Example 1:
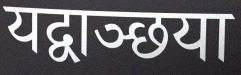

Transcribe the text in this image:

यद्वाञ्छया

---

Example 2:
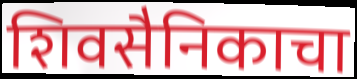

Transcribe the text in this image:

शिवसैनिकाचा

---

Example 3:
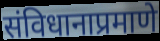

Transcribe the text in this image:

संविधानाप्रमाणे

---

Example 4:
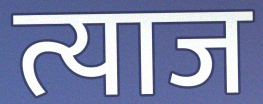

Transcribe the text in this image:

त्याज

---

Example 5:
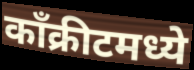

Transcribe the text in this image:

काँक्रीटमध्ये